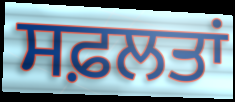
ਸਫ਼ਲਤਾਂ